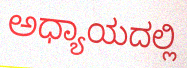
ಅಧ್ಯಾಯದಲ್ಲಿ